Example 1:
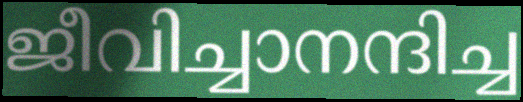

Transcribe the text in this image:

ജീവിച്ചാനന്ദിച്ച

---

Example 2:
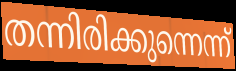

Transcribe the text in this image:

തന്നിരിക്കുന്നെന്ന്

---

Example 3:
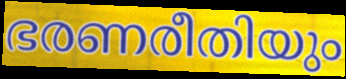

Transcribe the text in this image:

ഭരണരീതിയും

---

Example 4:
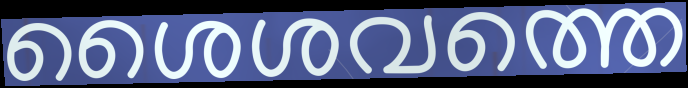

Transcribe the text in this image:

ശൈശവത്തെ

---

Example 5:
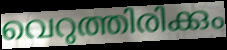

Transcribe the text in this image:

വെറുത്തിരിക്കും